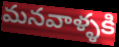
మనవాళ్ళకి